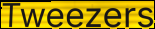
Tweezers